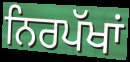
ਨਿਰਪੱਖਾਂ